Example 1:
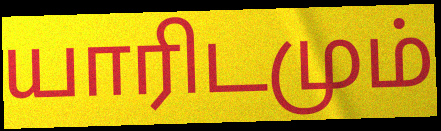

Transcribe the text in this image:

யாரிடமும்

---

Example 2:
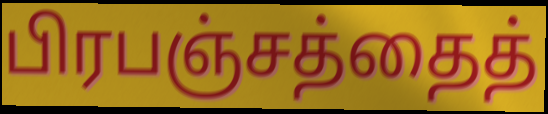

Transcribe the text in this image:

பிரபஞ்சத்தைத்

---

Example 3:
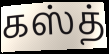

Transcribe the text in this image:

கஸ்த்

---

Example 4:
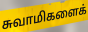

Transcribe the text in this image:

சுவாமிகளைக்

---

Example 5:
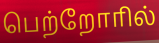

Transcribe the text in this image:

பெற்றோரில்